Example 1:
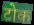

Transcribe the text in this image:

टोक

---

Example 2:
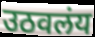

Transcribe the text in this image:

उठवलंय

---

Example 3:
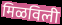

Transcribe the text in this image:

मिळविली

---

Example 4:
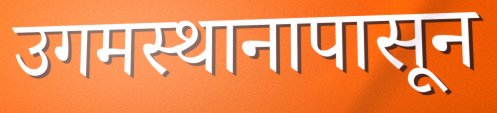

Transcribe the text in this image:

उगमस्थानापासून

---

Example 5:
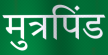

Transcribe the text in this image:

मुत्रपिंड